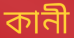
কানী